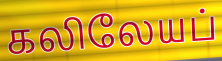
கலிலேயப்